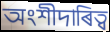
অংশীদাৰিত্ব